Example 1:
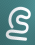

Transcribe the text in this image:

ഭു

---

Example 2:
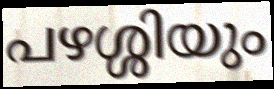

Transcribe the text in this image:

പഴശ്ശിയും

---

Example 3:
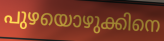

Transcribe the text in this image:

പുഴയൊഴുക്കിനെ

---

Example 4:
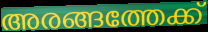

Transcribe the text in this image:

അരങ്ങത്തേക്ക്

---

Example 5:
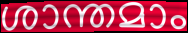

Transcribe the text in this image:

ശാന്തമാം